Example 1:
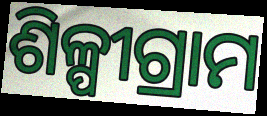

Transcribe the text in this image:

ଶିଳ୍ପୀଗ୍ରାମ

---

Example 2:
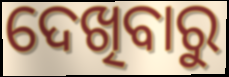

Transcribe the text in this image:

ଦେଖିବାରୁ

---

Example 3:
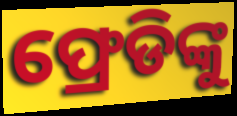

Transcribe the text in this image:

ଫ୍ରେଡିଙ୍କୁ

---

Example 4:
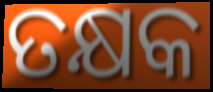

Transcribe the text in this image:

ତକ୍ଷକ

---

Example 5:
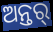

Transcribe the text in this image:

ଅନ୍ତର୍